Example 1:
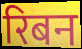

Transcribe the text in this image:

रिबन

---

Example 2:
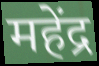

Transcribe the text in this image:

महेंद्र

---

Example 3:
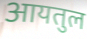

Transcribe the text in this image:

आयतुल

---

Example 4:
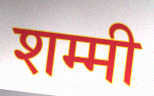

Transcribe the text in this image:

शम्मी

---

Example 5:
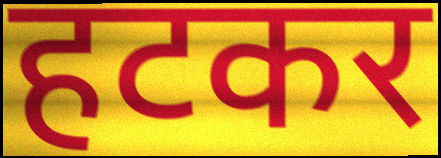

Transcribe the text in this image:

हटकर